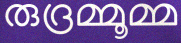
രുദ്രമ്മൂമ്മ